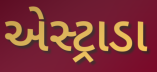
એસ્ટ્રાડા